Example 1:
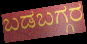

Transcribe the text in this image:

ಬಡಬಗ್ಗರ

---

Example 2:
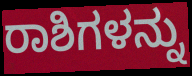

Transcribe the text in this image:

ರಾಶಿಗಳನ್ನು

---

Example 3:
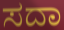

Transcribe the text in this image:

ಸದಾ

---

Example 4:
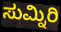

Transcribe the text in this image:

ಸುಮ್ನಿರಿ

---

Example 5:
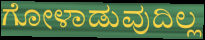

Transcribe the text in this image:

ಗೋಳಾಡುವುದಿಲ್ಲ